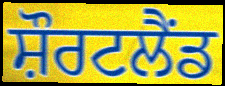
ਸ਼ੌਰਟਲੈਂਡ